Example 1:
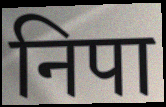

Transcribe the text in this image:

निपा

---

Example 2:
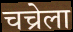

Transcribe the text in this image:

चच्रेला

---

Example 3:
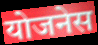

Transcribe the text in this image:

योजनेस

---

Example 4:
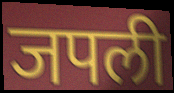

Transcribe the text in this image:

जपली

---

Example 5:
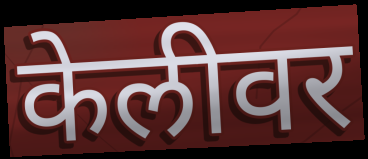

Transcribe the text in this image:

केलीवर